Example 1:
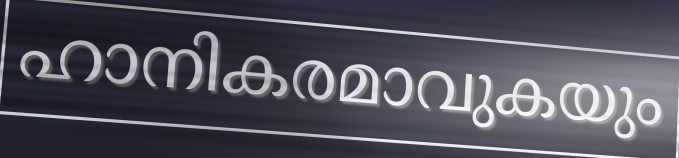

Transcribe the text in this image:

ഹാനികരമാവുകയും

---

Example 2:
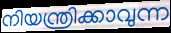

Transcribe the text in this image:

നിയന്ത്രിക്കാവുന്ന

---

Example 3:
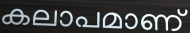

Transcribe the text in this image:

കലാപമാണ്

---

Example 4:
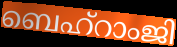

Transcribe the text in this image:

ബെഹ്റാംജി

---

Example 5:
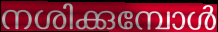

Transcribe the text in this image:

നശിക്കുമ്പോൾ